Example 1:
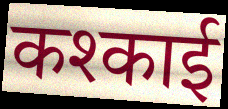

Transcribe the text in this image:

कश्काई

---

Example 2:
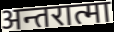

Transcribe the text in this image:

अन्तरात्मा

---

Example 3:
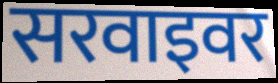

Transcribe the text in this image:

सरवाइवर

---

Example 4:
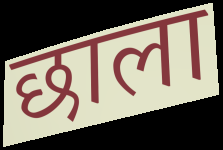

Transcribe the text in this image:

छाला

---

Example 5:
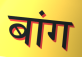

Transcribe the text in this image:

बांग